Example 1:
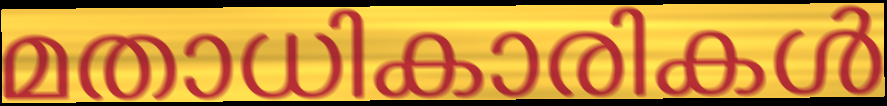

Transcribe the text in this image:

മതാധികാരികൾ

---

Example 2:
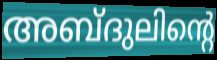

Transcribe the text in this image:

അബ്ദുലിന്റെ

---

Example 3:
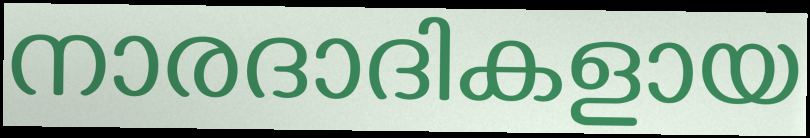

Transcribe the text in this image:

നാരദാദികളായ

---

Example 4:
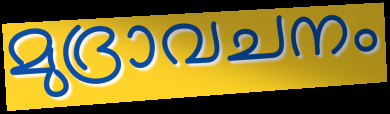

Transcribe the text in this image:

മുദ്രാവചനം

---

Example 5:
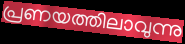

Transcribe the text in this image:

പ്രണയത്തിലാവുന്നു